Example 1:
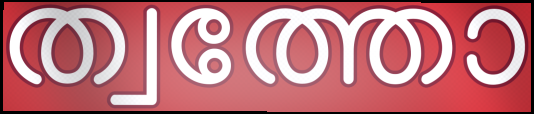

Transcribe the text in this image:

ത്വത്തോ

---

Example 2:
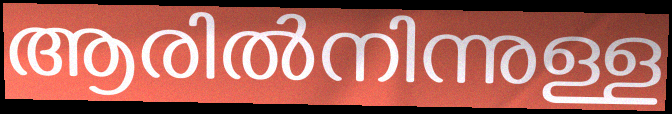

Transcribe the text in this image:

ആരിൽനിന്നുള്ള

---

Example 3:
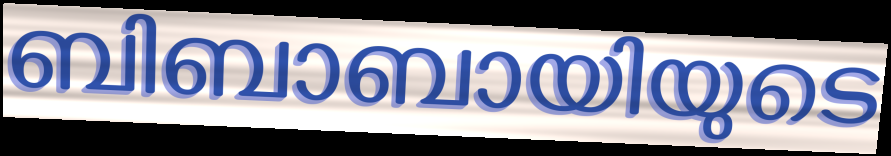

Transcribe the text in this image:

ബിബാബായിയുടെ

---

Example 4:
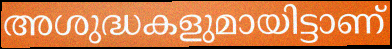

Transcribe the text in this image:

അശുദ്ധകളുമായിട്ടാണ്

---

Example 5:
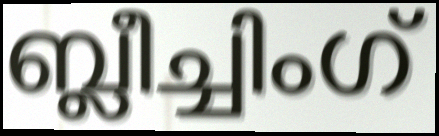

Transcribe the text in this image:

ബ്ലീച്ചിംഗ്